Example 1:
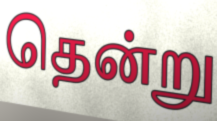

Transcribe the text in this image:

தென்று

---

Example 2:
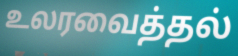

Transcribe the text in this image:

உலரவைத்தல்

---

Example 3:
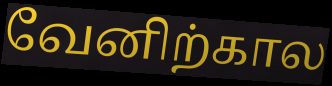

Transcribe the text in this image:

வேனிற்கால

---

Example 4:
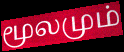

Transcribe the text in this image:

மூலமும்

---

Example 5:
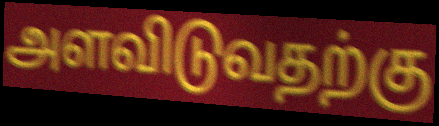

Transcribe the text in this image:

அளவிடுவதற்கு